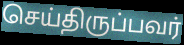
செய்திருப்பவர்